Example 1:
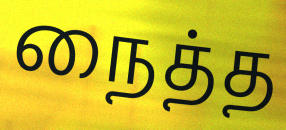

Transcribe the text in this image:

நைத்த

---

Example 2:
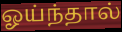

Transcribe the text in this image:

ஓய்ந்தால்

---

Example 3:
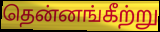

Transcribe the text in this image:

தென்னங்கீற்று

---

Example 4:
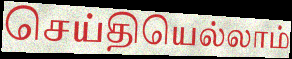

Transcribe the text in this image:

செய்தியெல்லாம்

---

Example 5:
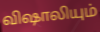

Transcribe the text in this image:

விஷாலியும்